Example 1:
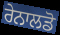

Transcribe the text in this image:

ਰੇਨਾਲਡੋ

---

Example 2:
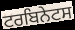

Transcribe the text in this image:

ਟਰਬਿਨੇਟਸ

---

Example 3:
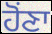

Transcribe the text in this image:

ਹੋਂਣਾ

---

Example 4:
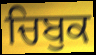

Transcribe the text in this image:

ਚਿਬੁਕ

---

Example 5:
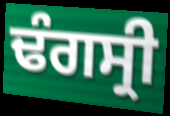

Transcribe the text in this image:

ਢੰਗਸ੍ਰੀ